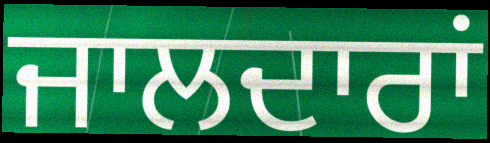
ਜਾਲਦਾਰਾਂ